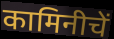
कामिनीचें